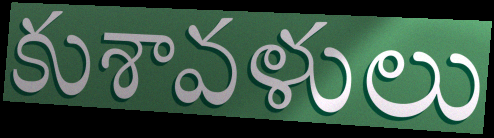
కుశావళులు